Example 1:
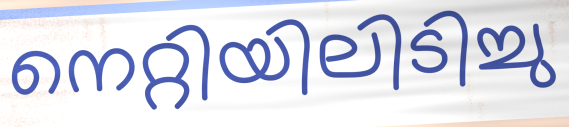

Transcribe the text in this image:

നെറ്റിയിലിടിച്ചു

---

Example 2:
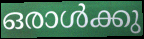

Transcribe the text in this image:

ഒരാൾക്കു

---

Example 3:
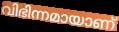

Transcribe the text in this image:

വിഭിന്നമായാണ്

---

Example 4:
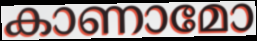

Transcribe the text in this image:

കാണാമോ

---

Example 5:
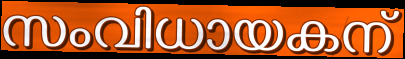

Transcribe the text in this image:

സംവിധായകന്